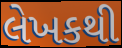
લેખકથી